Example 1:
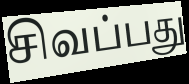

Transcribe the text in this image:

சிவப்பது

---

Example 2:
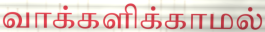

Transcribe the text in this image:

வாக்களிக்காமல்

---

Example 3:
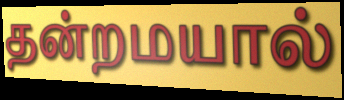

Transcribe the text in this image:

தன்றமயால்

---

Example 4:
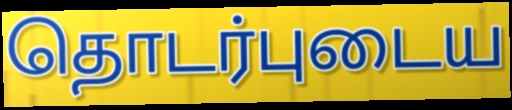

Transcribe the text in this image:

தொடர்புடைய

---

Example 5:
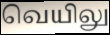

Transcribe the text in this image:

வெயிலு